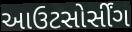
આઉટસોર્સીંગ